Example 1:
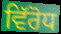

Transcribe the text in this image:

ਵਿੱਰੋਧ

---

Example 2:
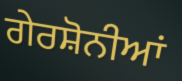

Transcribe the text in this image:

ਗੇਰਸ਼ੋਨੀਆਂ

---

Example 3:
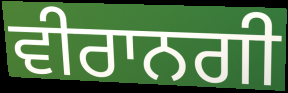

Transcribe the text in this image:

ਵੀਰਾਨਗੀ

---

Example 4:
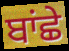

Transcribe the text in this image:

ਬਾਂਛੇ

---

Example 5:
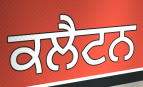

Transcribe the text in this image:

ਕਲੈਟਨ